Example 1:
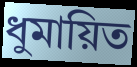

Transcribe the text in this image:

ধুমায়িত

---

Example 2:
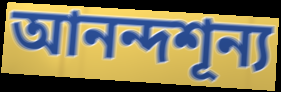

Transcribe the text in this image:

আনন্দশূন্য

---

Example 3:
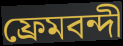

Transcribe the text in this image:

ফ্রেমবন্দী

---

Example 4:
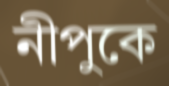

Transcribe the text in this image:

নীপুকে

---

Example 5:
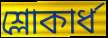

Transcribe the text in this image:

শ্লোকার্ধ